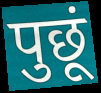
पुछूं